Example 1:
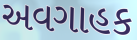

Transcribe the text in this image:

અવગાહક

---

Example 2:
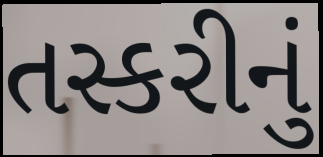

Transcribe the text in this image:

તસ્કરીનું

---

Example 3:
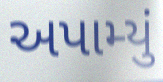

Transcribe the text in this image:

અપામ્યું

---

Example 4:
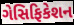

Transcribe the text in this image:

ગેસિફિકેશન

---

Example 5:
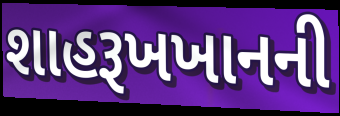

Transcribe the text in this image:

શાહરૂખખાનની